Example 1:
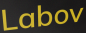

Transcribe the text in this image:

Labov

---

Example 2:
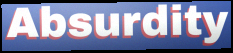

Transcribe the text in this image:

Absurdity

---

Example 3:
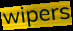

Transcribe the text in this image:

wipers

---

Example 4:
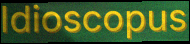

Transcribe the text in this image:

Idioscopus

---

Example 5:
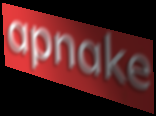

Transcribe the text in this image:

apnake